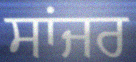
ਸਾਂਜਰ